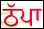
ਠੱਪਾ